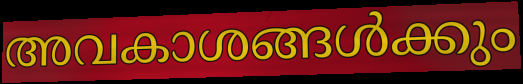
അവകാശങ്ങൾക്കും